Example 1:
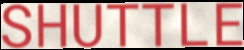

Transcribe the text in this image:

SHUTTLE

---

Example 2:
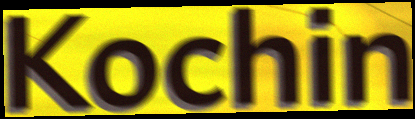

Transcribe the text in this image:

Kochin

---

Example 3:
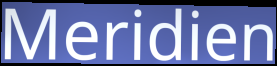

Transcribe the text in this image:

Meridien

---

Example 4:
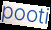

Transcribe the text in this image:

pooti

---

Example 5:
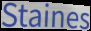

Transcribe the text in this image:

Staines